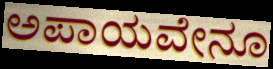
ಅಪಾಯವೇನೂ